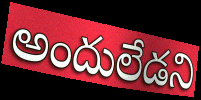
అందులేడని